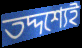
তদ্দশ্যেই